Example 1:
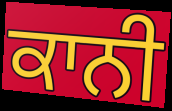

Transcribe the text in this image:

ਕਾਨੀ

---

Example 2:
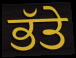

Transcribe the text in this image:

ਭੱਤੇ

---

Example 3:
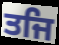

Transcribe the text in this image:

ਤਜਿ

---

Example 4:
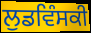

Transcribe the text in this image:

ਲੁਡਵਿੰਸਕੀ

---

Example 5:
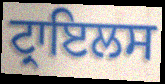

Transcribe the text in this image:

ਟ੍ਰਾਇਲਸ